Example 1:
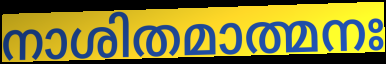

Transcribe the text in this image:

നാശിതമാത്മനഃ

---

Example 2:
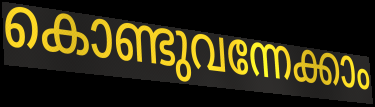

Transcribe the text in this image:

കൊണ്ടുവന്നേക്കാം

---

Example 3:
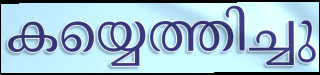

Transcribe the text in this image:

കയ്യെത്തിച്ചു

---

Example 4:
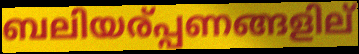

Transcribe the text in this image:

ബലിയര്പ്പണങ്ങളില്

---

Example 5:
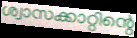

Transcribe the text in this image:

ശ്വാസക്കാറ്റിന്റെ